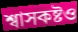
শ্বাসকষ্টও